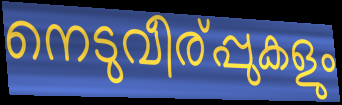
നെടുവീര്പ്പുകളും